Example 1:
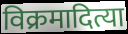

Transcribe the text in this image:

विक्रमादित्या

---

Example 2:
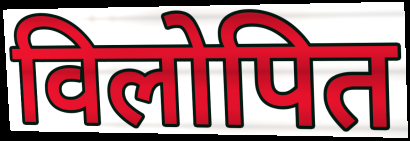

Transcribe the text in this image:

विलोपित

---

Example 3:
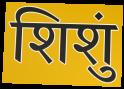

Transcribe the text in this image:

शिशुं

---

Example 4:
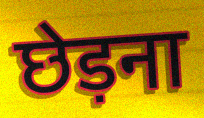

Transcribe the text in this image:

छेड़ना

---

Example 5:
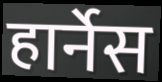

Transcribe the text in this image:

हार्नेस